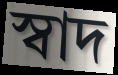
স্বাদ